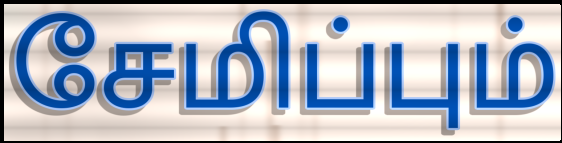
சேமிப்பும்